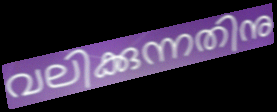
വലിക്കുന്നതിനു